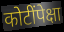
कोटींपेक्षा